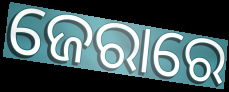
ଜେରାରେ